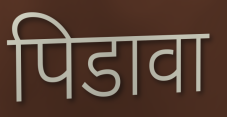
पिडावा